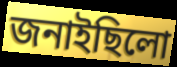
জনাইছিলো